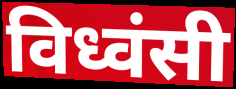
विध्वंसी